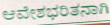
ಆವೇಶಭರಿತನಾಗಿ